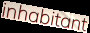
inhabitant